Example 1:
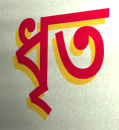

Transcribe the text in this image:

ধৃত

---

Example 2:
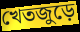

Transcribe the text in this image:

খেতজুড়ে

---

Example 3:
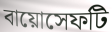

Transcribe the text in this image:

বায়োসেফটি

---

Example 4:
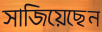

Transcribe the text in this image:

সাজিয়েছেন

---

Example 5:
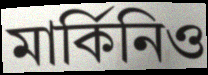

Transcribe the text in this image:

মার্কিনিও